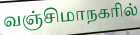
வஞ்சிமாநகரில்